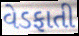
વેડફાતી